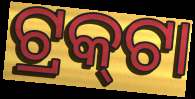
ଟ୍ରକ୍‌ଟା